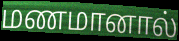
மணமானால்